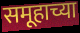
समूहाच्या